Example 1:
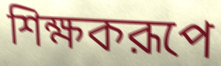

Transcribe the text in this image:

শিক্ষকরূপে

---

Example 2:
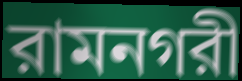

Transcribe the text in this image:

রামনগরী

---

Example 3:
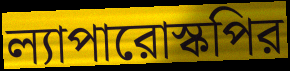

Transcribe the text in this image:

ল্যাপারোস্কপির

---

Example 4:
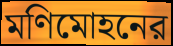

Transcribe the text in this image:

মণিমোহনের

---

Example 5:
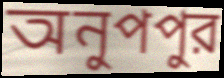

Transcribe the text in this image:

অনুপপুর